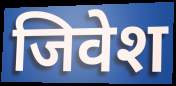
जिवेश